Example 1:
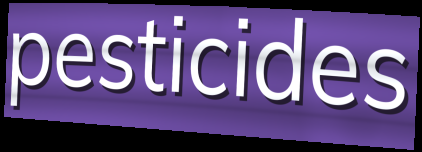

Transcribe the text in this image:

pesticides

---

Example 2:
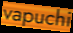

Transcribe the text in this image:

vapuchi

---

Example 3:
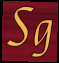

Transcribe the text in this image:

Sg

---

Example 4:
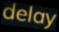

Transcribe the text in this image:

delay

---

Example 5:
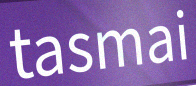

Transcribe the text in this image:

tasmai